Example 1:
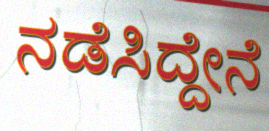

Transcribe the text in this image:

ನಡೆಸಿದ್ದೇನೆ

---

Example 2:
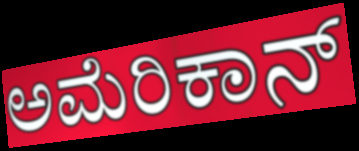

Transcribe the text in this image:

ಅಮೆರಿಕಾನ್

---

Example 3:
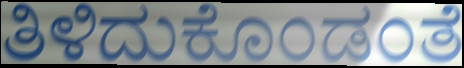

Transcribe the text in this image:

ತಿಳಿದುಕೊಂಡಂತೆ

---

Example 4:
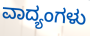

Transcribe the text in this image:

ವಾದ್ಯಂಗಳು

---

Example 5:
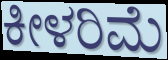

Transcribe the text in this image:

ಕೀಳರಿಮೆ